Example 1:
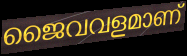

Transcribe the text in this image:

ജൈവവളമാണ്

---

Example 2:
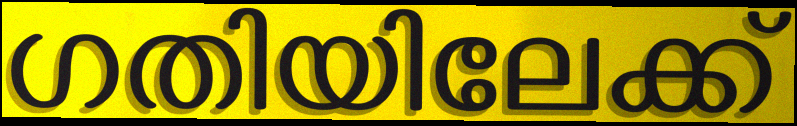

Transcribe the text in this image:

ഗതിയിലേക്ക്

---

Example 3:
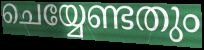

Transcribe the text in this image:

ചെയ്യേണ്ടതും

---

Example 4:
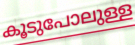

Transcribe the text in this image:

കൂടുപോലുള്ള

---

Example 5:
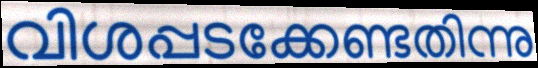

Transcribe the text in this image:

വിശപ്പടക്കേണ്ടതിന്നു